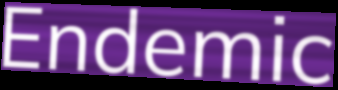
Endemic